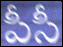
పీసీ